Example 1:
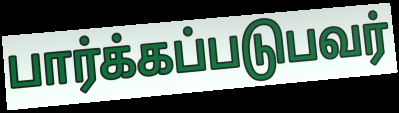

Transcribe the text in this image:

பார்க்கப்படுபவர்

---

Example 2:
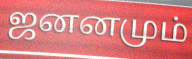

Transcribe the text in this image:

ஜனனமும்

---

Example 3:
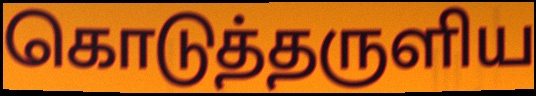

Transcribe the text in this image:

கொடுத்தருளிய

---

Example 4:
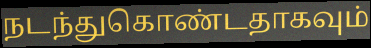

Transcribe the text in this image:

நடந்துகொண்டதாகவும்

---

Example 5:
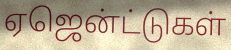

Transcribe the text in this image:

ஏஜென்ட்டுகள்